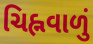
ચિહ્નવાળું